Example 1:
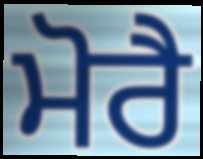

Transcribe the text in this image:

ਮੋਰੈ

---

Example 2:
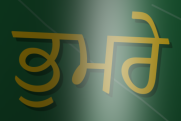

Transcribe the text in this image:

ਭੁਮਰੇ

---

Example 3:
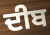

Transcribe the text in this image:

ਦੀਬ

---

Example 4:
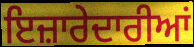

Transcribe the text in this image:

ਇਜ਼ਾਰੇਦਾਰੀਆਂ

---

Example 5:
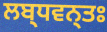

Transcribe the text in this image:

ਲਬ੍ਧਵਨ੍ਤਃ